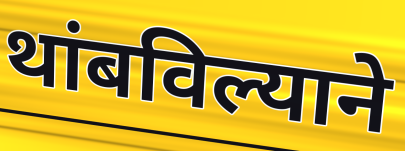
थांबविल्याने